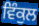
ਵਿੰਕੁਲ